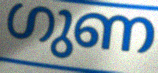
ഗുണ